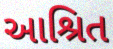
આશ્રિત